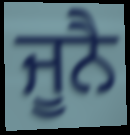
ਜੂਨੈ